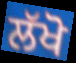
ਲੱਖੋ